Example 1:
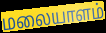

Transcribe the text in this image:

மலையாளம்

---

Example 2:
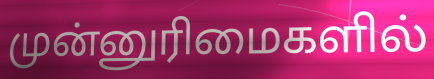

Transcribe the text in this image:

முன்னுரிமைகளில்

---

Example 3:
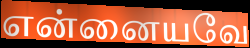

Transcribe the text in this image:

என்னையவே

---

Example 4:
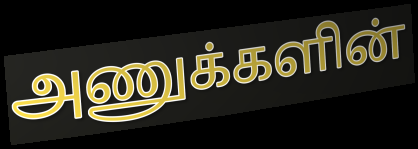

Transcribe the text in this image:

அணுக்களின்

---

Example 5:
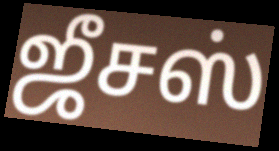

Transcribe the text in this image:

ஜீசஸ்